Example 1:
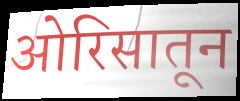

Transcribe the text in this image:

ओरिसातून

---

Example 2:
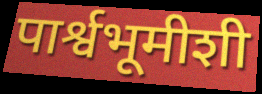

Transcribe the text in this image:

पार्श्वभूमीशी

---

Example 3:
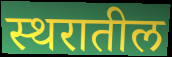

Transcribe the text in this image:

स्थरातील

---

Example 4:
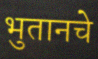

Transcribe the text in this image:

भुतानचे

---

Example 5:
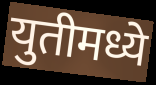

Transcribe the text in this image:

युतीमध्ये